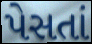
પેસતાં